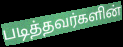
படித்தவர்களின்